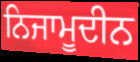
ਨਿਜਾਮੂਦੀਨ